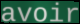
avoir